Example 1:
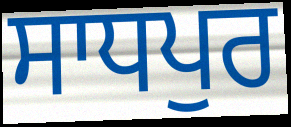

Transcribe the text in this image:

ਸਾਧਪੁਰ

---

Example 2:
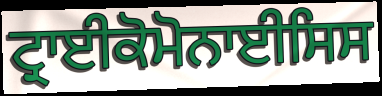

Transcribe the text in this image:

ਟ੍ਰਾਈਕੋਮੋਨਾਈਸਿਸ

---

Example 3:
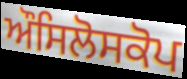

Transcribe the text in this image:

ਔਸਿਲੋਸਕੋਪ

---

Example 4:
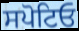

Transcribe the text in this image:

ਸਪੋਟਿਓ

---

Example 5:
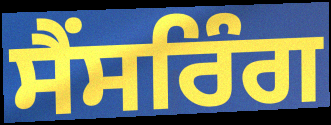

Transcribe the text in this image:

ਸੈਂਸਰਿੰਗ